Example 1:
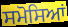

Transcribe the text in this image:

ਸਮੋਸਿਆਂ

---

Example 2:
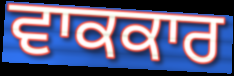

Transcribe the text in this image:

ਵਾਕਕਾਰ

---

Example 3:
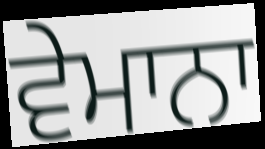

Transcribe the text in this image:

ਵੇਮਾਨਾ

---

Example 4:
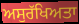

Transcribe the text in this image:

ਅਸੁਰੱਖਿਅਤਾ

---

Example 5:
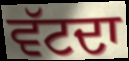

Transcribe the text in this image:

ਵੱਟਦਾ